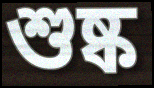
শুষ্ক